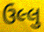
ઉલ્લુ